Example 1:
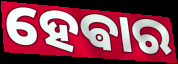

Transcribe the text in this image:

ହେଵାର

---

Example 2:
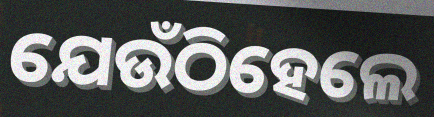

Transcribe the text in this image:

ଯେଉଁଠିହେଲେ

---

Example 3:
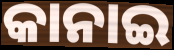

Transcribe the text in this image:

କାନାଇ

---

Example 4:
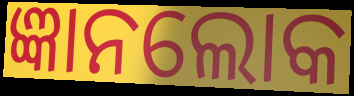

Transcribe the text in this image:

ଜ୍ଞାନଲୋକ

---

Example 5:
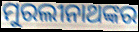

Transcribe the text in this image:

ମୁରଲୀନାଥଙ୍କର